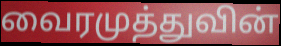
வைரமுத்துவின்